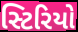
સ્ટિરિયો